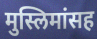
मुस्लिमांसह